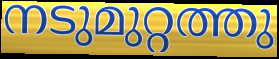
നടുമുറ്റത്തു